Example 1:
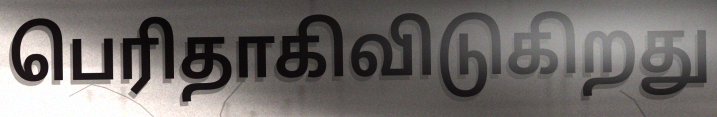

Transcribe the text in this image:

பெரிதாகிவிடுகிறது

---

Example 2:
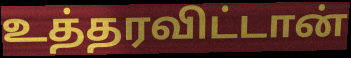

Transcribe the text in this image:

உத்தரவிட்டான்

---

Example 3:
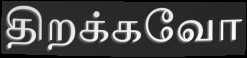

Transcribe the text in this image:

திறக்கவோ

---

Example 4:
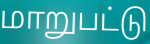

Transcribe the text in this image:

மாறுபட்டு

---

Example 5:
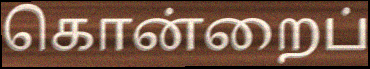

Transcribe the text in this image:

கொன்றைப்